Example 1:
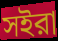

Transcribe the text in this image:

সইরা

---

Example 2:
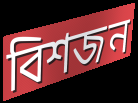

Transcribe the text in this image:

বিশজন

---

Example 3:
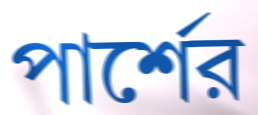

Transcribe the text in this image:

পার্শের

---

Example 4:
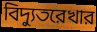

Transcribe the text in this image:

বিদ্যুতরেখার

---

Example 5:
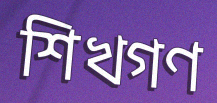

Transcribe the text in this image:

শিখগণ